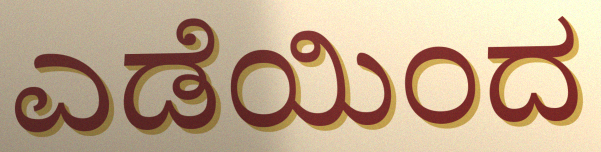
ಎಡೆಯಿಂದ